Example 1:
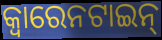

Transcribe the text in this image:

କ୍ୱାରେନଟାଇନ୍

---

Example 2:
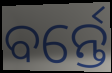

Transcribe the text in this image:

ବର୍ନ୍ତେ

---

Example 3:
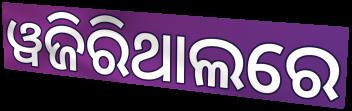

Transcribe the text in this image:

ୱଜିରିଥାଲରେ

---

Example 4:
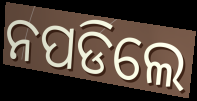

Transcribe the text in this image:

ନପଡିଲେ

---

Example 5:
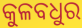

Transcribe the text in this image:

କୁଳବଧୁର